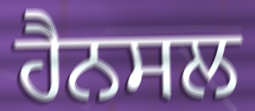
ਹੈਨਸਲ